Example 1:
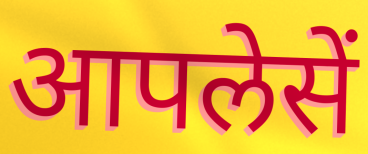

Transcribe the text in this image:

आपलेसें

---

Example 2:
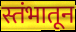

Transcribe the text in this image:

स्तंभातून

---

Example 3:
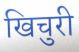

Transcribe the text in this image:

खिचुरी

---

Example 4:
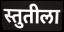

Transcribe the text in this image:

स्तुतीला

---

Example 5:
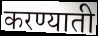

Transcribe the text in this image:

करण्याती